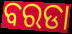
ବରଡା